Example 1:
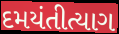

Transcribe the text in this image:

દમયંતીત્યાગ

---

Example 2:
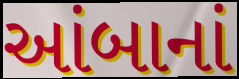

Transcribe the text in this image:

આંબાનાં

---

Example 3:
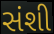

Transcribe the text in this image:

સંશી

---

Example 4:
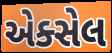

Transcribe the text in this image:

એક્સેલ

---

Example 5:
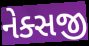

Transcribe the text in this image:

નેક્સજી